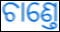
ଚାଣ୍ତେ